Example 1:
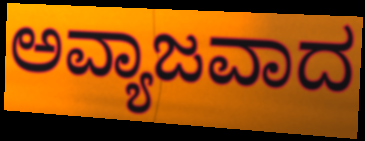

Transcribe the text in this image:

ಅವ್ಯಾಜವಾದ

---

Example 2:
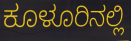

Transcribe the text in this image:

ಕೂಳೂರಿನಲ್ಲಿ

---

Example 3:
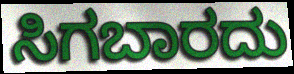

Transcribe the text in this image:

ಸಿಗಬಾರದು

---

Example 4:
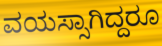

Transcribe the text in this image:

ವಯಸ್ಸಾಗಿದ್ದರೂ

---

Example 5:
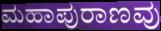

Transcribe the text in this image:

ಮಹಾಪುರಾಣವು